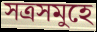
সত্ৰসমুহে